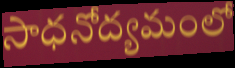
సాధనోద్యమంలో